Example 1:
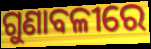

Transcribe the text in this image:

ଗୁଣାବଳୀରେ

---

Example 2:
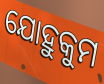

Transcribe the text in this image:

ଯୋହୁକୁମ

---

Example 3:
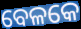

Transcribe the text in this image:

ବେଳକେ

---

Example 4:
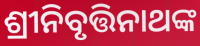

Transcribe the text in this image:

ଶ୍ରୀନିବୃତ୍ତିନାଥଙ୍କ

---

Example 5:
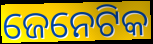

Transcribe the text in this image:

ଜେନେଟିକ